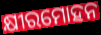
କ୍ଷୀରମୋହନ